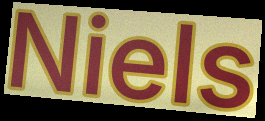
Niels